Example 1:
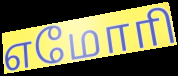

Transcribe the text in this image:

எமோரி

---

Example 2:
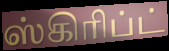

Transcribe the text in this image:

ஸ்கிரிப்ட்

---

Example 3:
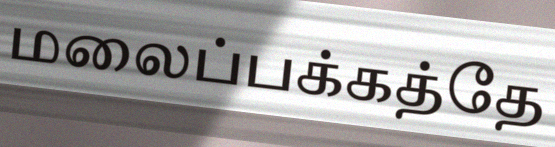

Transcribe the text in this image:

மலைப்பக்கத்தே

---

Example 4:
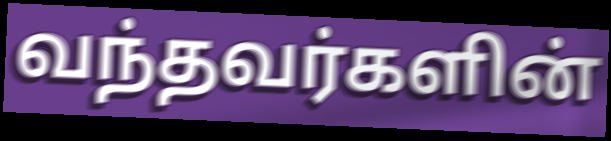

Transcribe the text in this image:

வந்தவர்களின்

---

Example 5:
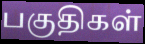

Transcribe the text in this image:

பகுதிகள்